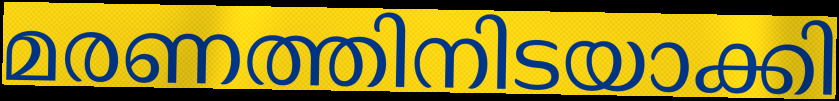
മരണത്തിനിടയാക്കി